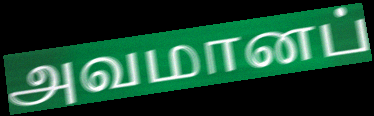
அவமானப்